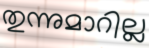
തുന്നുമാറില്ല